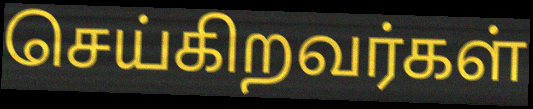
செய்கிறவர்கள்